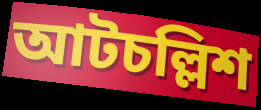
আটচল্লিশ